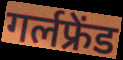
गर्लफ्रेंड